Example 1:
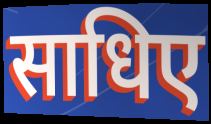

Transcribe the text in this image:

साधिए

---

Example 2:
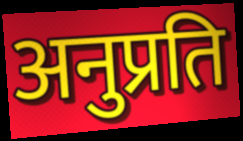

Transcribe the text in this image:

अनुप्रति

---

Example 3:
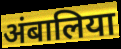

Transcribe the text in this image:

अंबालिया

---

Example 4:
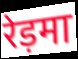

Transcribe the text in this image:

रेड़मा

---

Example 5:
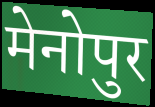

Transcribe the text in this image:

मेनोपुर